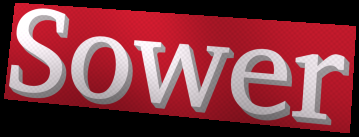
Sower